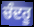
ਚੰਦਰੂ